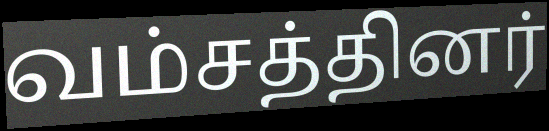
வம்சத்தினர்